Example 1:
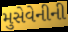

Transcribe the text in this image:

મુસેવેનીની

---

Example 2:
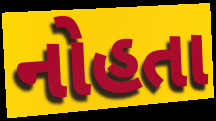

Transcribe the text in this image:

નોહતા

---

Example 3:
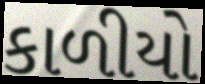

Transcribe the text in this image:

કાળીયો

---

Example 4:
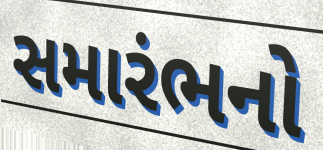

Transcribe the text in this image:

સમારંભનો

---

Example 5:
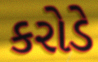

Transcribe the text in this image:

કરોડે